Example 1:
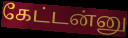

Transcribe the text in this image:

கேட்டன்னு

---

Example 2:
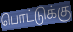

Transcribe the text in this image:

பொட்டுக்கு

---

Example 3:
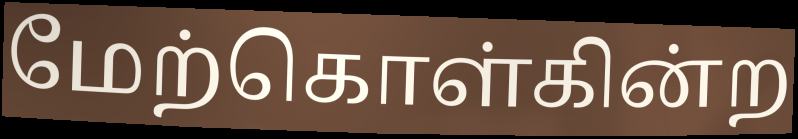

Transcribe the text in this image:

மேற்கொள்கின்ற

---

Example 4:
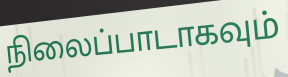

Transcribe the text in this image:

நிலைப்பாடாகவும்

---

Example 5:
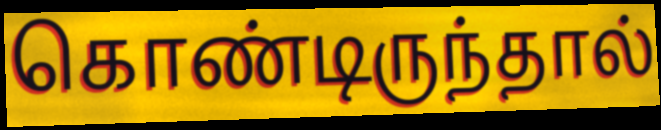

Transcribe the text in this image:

கொண்டிருந்தால்